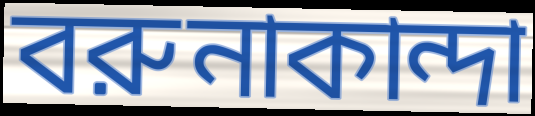
বরুনাকান্দা